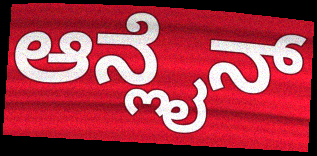
ಆನ್ಲೈನ್